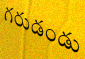
గరుడండు